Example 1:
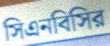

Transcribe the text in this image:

সিএনবিসির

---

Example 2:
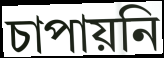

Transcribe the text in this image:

চাপায়নি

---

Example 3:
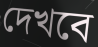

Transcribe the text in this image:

দেখবে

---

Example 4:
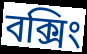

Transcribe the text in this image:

বক্সিং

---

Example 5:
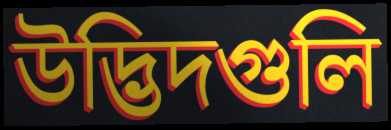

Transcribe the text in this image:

উদ্ভিদগুলি